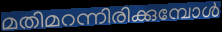
മതിമറന്നിരിക്കുമ്പോൾ